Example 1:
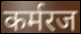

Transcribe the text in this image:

कर्मरज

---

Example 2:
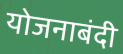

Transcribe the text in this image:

योजनाबंदी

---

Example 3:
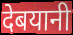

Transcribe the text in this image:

देबयानी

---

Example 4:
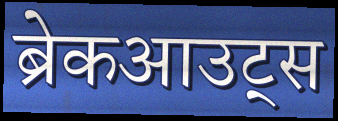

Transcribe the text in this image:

ब्रेकआउट्स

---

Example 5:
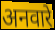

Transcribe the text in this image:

अनवारे